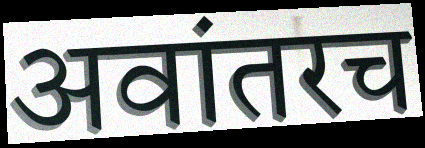
अवांतरच